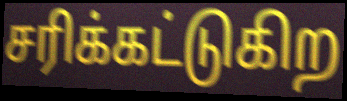
சரிக்கட்டுகிற